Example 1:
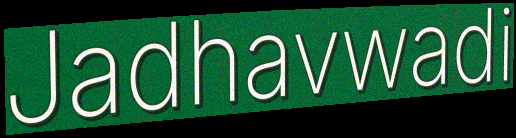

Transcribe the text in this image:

Jadhavwadi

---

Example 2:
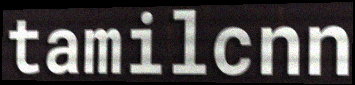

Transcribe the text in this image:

tamilcnn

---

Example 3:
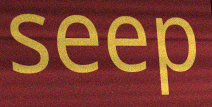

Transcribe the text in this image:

seep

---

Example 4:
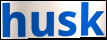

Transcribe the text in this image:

husk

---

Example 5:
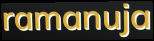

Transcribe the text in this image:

ramanuja